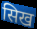
सिख